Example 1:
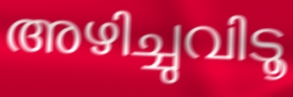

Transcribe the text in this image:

അഴിച്ചുവിടൂ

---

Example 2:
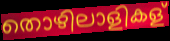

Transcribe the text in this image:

തൊഴിലാളികള്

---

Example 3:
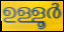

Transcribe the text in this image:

ഉള്ളൂർ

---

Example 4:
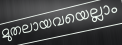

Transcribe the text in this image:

മുതലായവയെല്ലാം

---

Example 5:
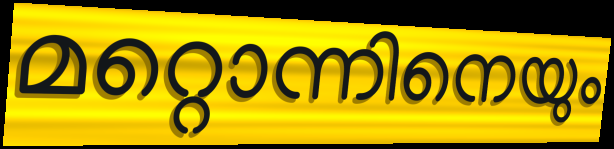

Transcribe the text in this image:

മറ്റൊന്നിനെയും